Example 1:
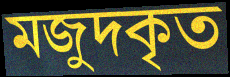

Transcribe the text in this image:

মজুদকৃত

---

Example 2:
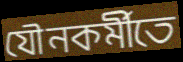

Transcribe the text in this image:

যৌনকর্মীতে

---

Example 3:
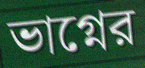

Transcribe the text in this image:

ভাগ্নের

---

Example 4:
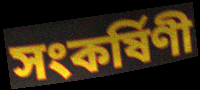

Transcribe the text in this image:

সংকর্ষিণী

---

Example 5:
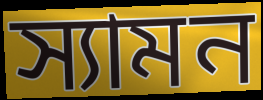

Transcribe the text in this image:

স্যামন